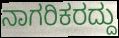
ನಾಗರಿಕರದ್ದು